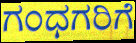
ಗಂಧಗರಿಗೆ